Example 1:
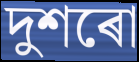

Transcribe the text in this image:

দুশৰো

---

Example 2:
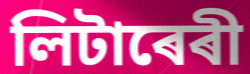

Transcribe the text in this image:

লিটাৰেৰী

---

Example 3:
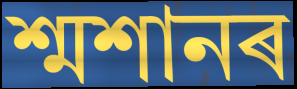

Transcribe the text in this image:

শ্মশানৰ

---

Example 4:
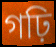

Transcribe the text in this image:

গঢ়ি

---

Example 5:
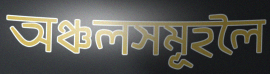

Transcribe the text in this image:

অঞ্চলসমূহলৈ